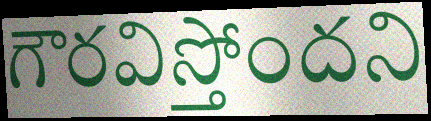
గౌరవిస్తోందని